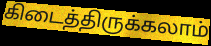
கிடைத்திருக்கலாம்